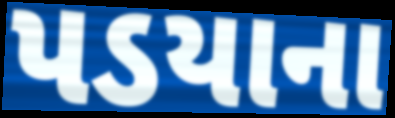
પડયાના